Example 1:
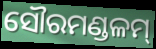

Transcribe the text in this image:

ସୌରମଣ୍ଡଳମ୍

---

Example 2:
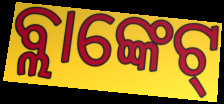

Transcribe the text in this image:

ବ୍ଲାଙ୍କେଟ୍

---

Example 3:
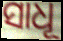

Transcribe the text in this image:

ସାଧୂ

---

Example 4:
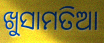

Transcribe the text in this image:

ଖୁସାମତିଆ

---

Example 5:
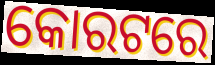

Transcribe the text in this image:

କୋରଟରେ